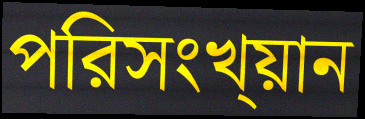
পরিসংখ্য়ান